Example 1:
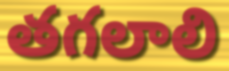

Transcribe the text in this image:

తగలాలి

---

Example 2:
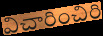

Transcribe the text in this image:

విచారించిరి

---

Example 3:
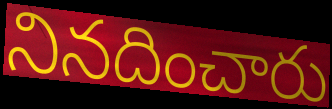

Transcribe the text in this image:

నినదించారు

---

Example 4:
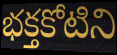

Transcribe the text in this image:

భక్తకోటిని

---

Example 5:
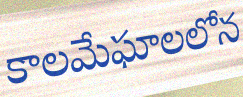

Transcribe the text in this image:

కాలమేఘాలలోన